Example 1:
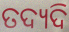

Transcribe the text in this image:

ତଦ୍ୟଦି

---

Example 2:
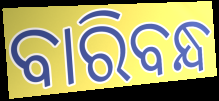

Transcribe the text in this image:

ବାରିବନ୍ଧ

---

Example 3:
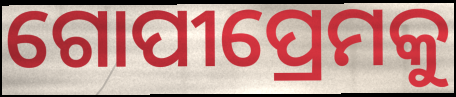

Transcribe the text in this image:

ଗୋପୀପ୍ରେମକୁ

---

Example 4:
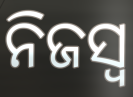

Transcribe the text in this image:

ନିଜସ୍ଵ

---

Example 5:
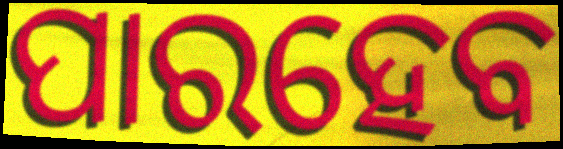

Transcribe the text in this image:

ପାରହେବ